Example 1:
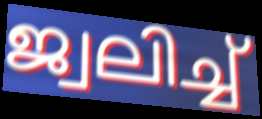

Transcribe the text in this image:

ജ്വലിച്ച്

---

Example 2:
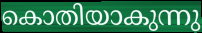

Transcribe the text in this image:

കൊതിയാകുന്നു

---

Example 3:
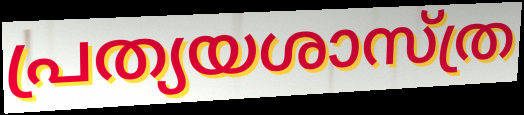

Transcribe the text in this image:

പ്രത്യയശാസ്ത്ര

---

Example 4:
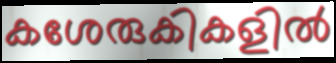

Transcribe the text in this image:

കശേരുകികളിൽ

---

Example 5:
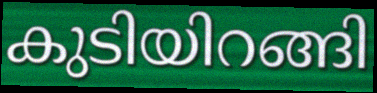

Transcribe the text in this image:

കുടിയിറങ്ങി